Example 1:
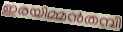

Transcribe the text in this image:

ഇരയിമ്മൻതമ്പി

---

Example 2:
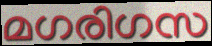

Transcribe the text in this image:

മഗരിഗസ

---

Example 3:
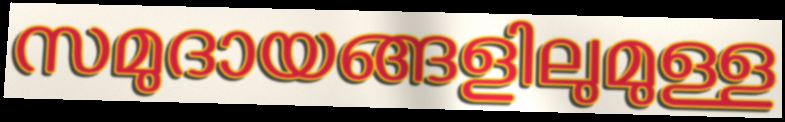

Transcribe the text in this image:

സമുദായങ്ങളിലുമുള്ള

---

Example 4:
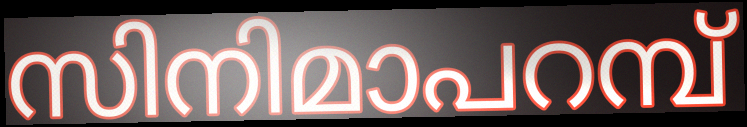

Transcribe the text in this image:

സിനിമാപറമ്പ്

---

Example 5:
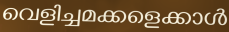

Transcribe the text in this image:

വെളിച്ചമക്കളെക്കാൾ